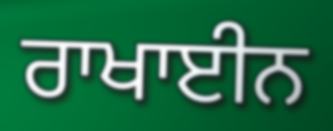
ਰਾਖਾਈਨ